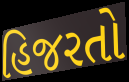
હિજરતો